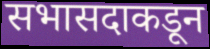
सभासदाकडून